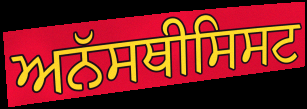
ਅਨੱਸਥੀਸਿਸਟ